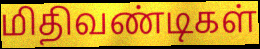
மிதிவண்டிகள்